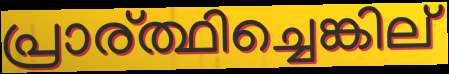
പ്രാര്ത്ഥിച്ചെങ്കില്